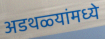
अडथळ्यांमध्ये